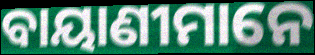
ବାୟାଣୀମାନେ